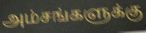
அம்சங்களுக்கு